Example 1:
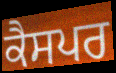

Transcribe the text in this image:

ਕੈਸਪਰ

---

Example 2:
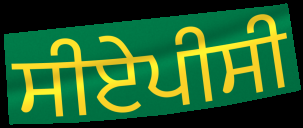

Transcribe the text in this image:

ਸੀਏਪੀਸੀ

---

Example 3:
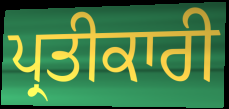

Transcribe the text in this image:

ਪ੍ਰਤੀਕਾਰੀ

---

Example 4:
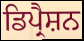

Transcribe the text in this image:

ਡਿਪ੍ਰੈਸ਼ਨ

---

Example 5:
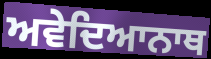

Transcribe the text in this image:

ਅਵੇਦਿਆਨਾਥ